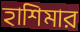
হাশিমার